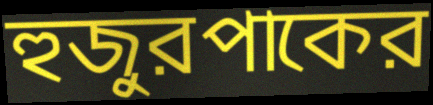
হুজুরপাকের